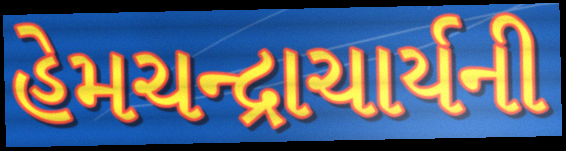
હેમચન્દ્રાચાર્યની